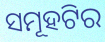
ସମୂହଟିର